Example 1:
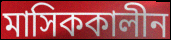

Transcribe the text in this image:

মাসিককালীন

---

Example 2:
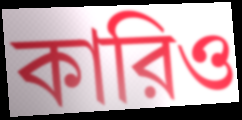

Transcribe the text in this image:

কারিও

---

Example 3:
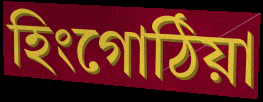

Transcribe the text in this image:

হিংগোঠিয়া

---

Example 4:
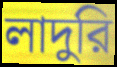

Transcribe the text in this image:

লাদুরি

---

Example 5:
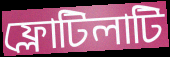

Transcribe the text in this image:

ফ্লোটিলাটি